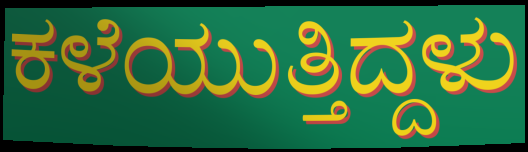
ಕಳೆಯುತ್ತಿದ್ದಳು